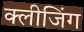
क्‍लीजिंग